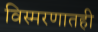
विस्मरणातही